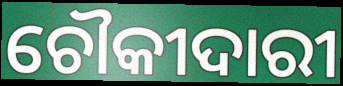
ଚୌକୀଦାରୀ